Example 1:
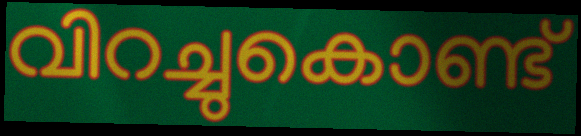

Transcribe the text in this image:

വിറച്ചുകൊണ്ട്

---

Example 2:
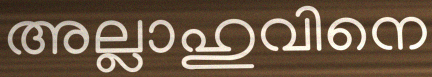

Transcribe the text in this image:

അല്ലാഹുവിനെ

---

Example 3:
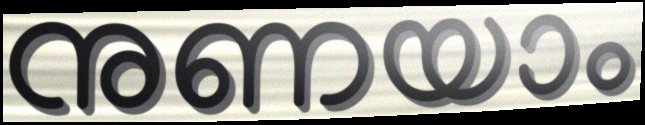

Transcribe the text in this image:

നുണയാം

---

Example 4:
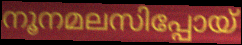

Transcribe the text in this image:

നൂനമലസിപ്പോയ്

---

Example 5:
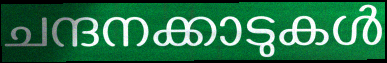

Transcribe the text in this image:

ചന്ദനക്കാടുകൾ